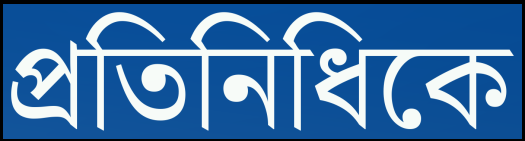
প্রতিনিধিকে